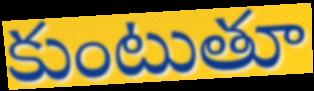
కుంటుతూ